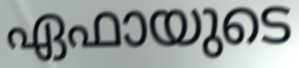
ഏഫായുടെ